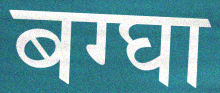
बग्घा